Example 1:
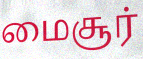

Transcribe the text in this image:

மைசூர்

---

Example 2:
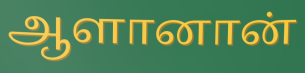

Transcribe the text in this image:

ஆளானான்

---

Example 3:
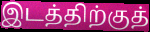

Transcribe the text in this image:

இடத்திற்குத்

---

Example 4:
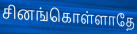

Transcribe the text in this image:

சினங்கொள்ளாதே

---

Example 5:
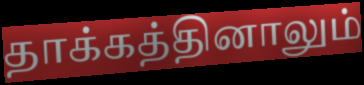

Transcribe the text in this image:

தாக்கத்தினாலும்